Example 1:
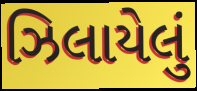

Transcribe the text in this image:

ઝિલાયેલું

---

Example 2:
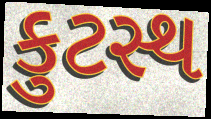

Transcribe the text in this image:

કુટસ્થ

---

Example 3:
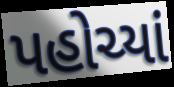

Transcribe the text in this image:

પહોચ્યાં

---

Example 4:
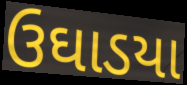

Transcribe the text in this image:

ઉઘાડયા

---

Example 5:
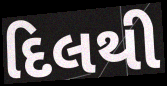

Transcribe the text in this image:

દિલથી